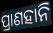
ପ୍ରାଣହାନି